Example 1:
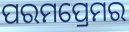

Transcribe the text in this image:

ପରମପ୍ରେମର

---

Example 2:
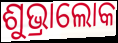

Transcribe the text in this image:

ଶୁଭ୍ରାଲୋକ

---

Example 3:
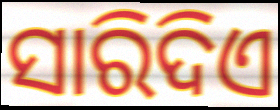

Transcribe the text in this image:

ସାରିଦିଏ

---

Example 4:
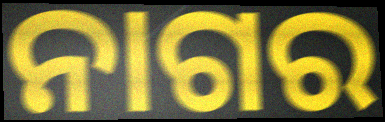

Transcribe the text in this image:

ନାଗର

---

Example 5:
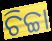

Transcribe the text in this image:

ଚିଚ୍ଚା